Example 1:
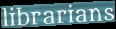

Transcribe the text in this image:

librarians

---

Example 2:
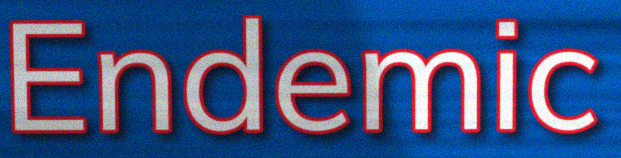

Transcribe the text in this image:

Endemic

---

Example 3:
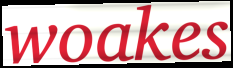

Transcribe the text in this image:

woakes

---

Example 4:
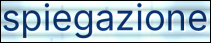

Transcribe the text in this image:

spiegazione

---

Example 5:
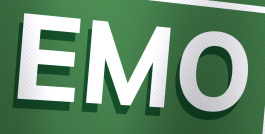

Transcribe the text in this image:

EMO